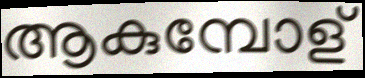
ആകുമ്പോള്